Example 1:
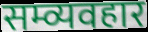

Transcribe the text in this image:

सम्व्यवहार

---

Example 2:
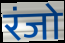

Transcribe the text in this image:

रंजो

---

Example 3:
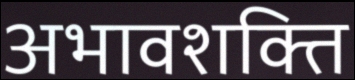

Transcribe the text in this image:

अभावशक्ति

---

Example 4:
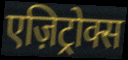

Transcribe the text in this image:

एज़िट्रोक्स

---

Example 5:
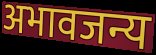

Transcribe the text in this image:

अभावजन्य